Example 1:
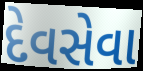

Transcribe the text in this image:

દેવસેવા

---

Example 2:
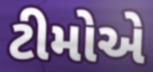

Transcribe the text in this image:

ટીમોએ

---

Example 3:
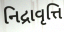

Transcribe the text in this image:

નિદ્રાવૃત્તિ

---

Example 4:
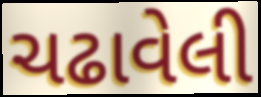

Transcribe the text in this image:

ચઢાવેલી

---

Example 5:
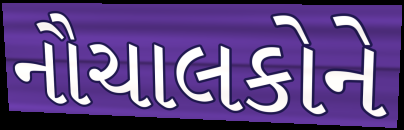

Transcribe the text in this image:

નૌચાલકોને